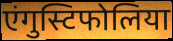
एंगुस्टिफोलिया